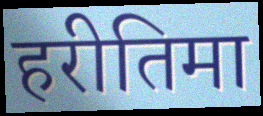
हरीतिमा